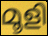
മൂളി